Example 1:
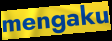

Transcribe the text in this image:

mengaku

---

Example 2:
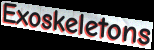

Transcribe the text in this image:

Exoskeletons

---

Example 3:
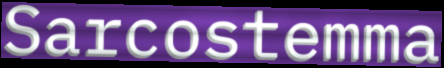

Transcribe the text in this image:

Sarcostemma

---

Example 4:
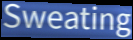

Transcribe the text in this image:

Sweating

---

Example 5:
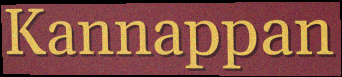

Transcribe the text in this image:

Kannappan